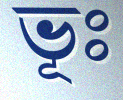
ভূঃ